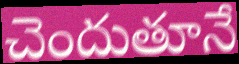
చెందుతూనే